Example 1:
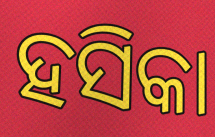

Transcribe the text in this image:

ହସିକା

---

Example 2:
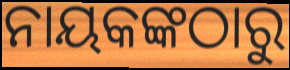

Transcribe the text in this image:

ନାୟକଙ୍କଠାରୁ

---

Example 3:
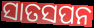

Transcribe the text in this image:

ସାତସପନ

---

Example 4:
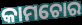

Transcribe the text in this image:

କାମଚୋର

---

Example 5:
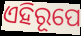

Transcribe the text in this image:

ଏହିରୂପେ